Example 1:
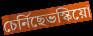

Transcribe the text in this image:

চেৰ্নিছেভস্কিয়ো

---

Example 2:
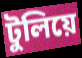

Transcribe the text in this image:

টুলিয়ে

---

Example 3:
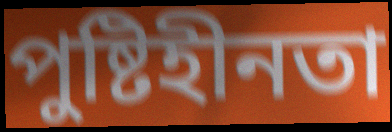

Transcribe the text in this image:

পুষ্টিহীনতা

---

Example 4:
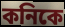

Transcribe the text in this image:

কনিকে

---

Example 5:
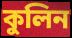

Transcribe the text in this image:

কুলিন